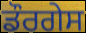
ਡੌਰਗੇਸ